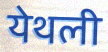
येथली